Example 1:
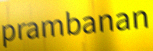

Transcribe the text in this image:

prambanan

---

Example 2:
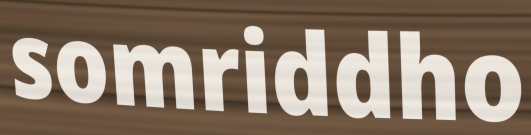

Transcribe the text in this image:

somriddho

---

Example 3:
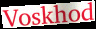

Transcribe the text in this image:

Voskhod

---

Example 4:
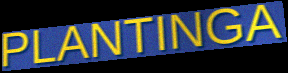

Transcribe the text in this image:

PLANTINGA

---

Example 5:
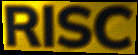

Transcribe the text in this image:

RISC